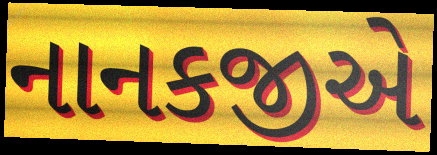
નાનકજીએ